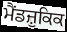
ਮੈਂਡਜ਼ੁਕਿਕ